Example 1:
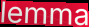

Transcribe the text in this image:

lemma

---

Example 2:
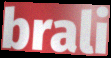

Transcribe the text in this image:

brali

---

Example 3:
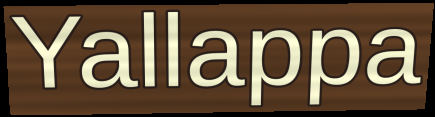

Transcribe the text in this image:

Yallappa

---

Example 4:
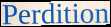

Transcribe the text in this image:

Perdition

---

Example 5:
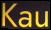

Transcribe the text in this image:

Kau